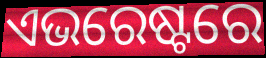
ଏଭରେଷ୍ଟରେ